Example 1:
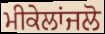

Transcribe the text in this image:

ਮੀਕੇਲਾਂਜਲੋ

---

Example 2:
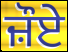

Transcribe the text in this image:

ਜ਼ੌਏ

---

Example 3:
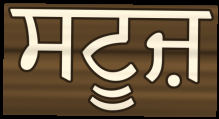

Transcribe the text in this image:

ਸਟੂਜ਼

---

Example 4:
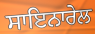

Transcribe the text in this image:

ਸਾਇਨਾਰੇਲ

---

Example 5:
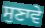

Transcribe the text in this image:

ਸੁਣਾਵੇ